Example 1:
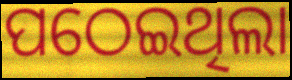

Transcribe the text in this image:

ପଠେଇଥିଲା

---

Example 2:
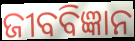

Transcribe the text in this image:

ଜୀବବିଜ୍ଞାନ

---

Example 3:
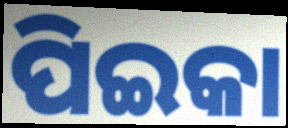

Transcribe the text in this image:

ପିଇକା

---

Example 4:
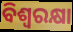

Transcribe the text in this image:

ବିଶ୍ୱରକ୍ଷା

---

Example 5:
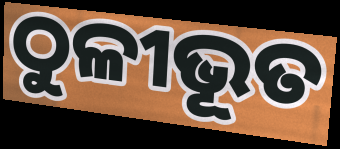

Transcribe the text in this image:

ଠୁଳୀଭୂତ